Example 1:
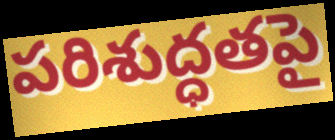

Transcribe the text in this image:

పరిశుద్ధతపై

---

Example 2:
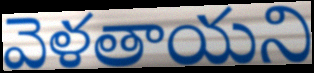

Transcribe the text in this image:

వెళతాయని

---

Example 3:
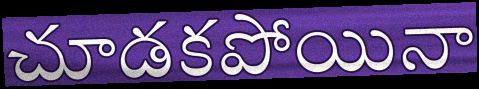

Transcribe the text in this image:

చూడకపోయినా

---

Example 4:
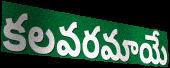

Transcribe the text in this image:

కలవరమాయే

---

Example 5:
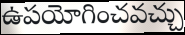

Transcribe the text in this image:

ఉపయోగించవచ్చు